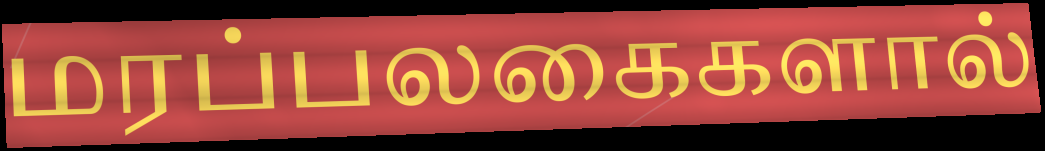
மரப்பலகைகளால்